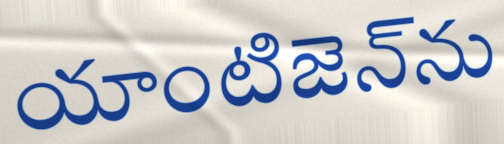
యాంటిజెన్‌ను